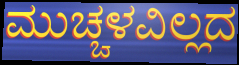
ಮುಚ್ಚಳವಿಲ್ಲದ